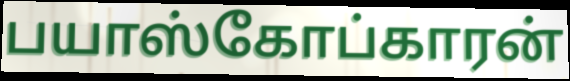
பயாஸ்கோப்காரன்